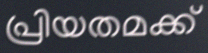
പ്രിയതമക്ക്